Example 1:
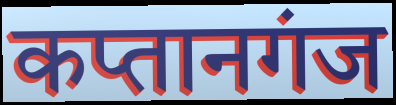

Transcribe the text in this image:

कप्तानगंज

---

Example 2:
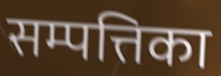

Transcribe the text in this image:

सम्पत्तिका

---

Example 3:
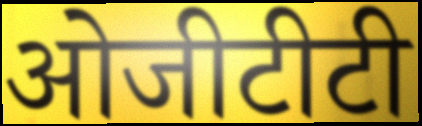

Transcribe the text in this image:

ओजीटीटी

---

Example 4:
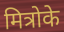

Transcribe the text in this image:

मित्रोके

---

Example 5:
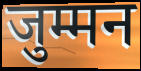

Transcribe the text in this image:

जुम्मन